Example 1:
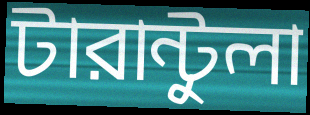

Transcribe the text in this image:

টারান্টুলা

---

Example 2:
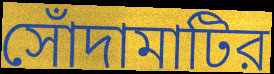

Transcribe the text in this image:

সোঁদামাটির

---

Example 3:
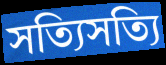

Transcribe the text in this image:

সত্যিসত্যি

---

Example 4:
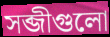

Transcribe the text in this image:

সব্জীগুলো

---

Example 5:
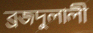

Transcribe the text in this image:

ব্রজদুলালী